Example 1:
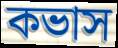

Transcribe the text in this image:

কভাস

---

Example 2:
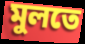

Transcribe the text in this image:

মুলতে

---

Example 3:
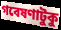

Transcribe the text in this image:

গবেষণাটুকু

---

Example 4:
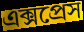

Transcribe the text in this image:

এক্সপ্রেস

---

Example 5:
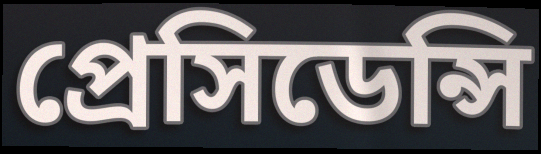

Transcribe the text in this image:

প্রেসিডেন্সি